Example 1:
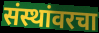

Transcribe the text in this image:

संस्थांवरचा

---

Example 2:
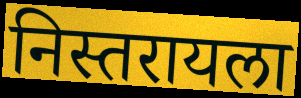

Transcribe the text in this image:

निस्तरायला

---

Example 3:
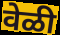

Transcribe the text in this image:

वेळी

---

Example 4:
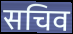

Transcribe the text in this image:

सचिव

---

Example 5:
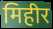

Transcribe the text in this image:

मिहीर